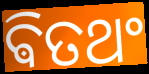
ଵିତଥଂ